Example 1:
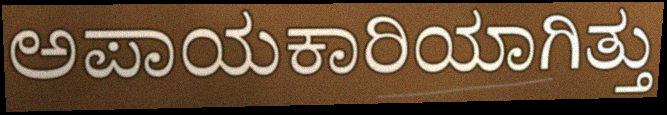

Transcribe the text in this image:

ಅಪಾಯಕಾರಿಯಾಗಿತ್ತು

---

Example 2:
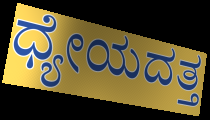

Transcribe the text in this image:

ಧ್ಯೇಯದತ್ತ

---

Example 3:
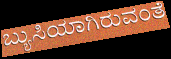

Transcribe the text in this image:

ಬ್ಯುಸಿಯಾಗಿರುವಂತೆ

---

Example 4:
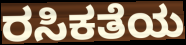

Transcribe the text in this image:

ರಸಿಕತೆಯ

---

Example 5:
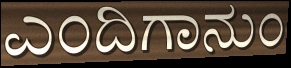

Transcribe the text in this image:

ಎಂದಿಗಾನುಂ